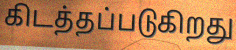
கிடத்தப்படுகிறது